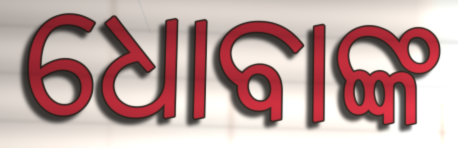
ଧୋବାଙ୍କ